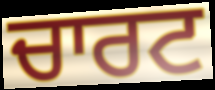
ਚਾਰਟ